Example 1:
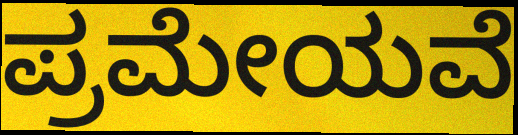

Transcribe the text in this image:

ಪ್ರಮೇಯವೆ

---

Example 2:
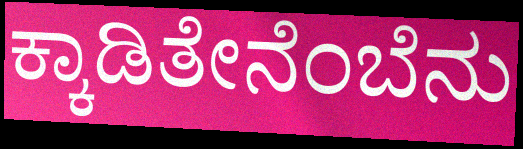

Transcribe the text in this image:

ಕ್ಕಾಡಿತೇನೆಂಬೆನು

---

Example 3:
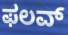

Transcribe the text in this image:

ಫಲವ್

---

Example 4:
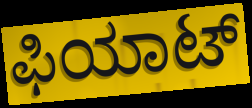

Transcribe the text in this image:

ಫಿಯಾಟ್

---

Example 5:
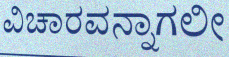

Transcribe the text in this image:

ವಿಚಾರವನ್ನಾಗಲೀ